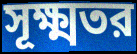
সূক্ষ্মতর